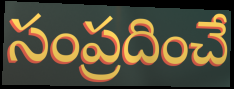
సంప్రదించే